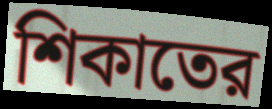
শিকাতের